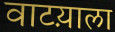
वाटय़ाला